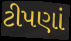
ટીપણાં